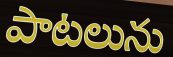
పాటలును